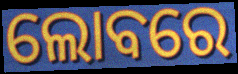
ଲୋବରେ